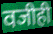
वजीही